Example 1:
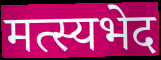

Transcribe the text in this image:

मत्स्यभेद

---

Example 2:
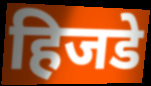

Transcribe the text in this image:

हिजडे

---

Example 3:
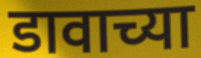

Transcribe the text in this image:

डावाच्या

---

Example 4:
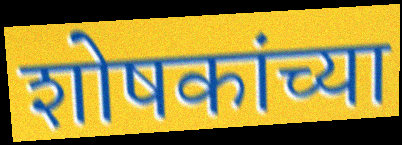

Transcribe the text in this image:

शोषकांच्या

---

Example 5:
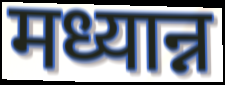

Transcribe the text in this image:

मध्यान्न